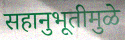
सहानुभूतीमुळे